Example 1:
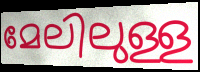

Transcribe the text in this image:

മേലിലുള്ള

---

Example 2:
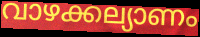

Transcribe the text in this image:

വാഴക്കല്യാണം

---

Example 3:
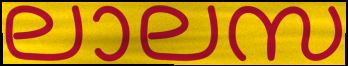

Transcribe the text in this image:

ലാലസ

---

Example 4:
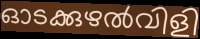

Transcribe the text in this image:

ഓടക്കുഴൽവിളി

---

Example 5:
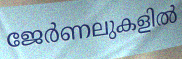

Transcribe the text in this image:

ജേർണലുകളിൽ